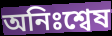
অনিঃশ্বেষ